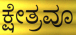
ಕ್ಷೇತ್ರವೂ